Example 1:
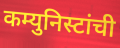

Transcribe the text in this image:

कम्युनिस्टांची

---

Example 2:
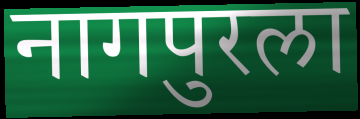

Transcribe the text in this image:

नागपुरला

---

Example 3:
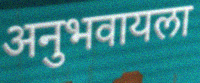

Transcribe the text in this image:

अनुभवायला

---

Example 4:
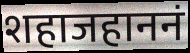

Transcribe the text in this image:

शहाजहाननं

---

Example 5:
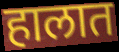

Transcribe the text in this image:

हालात